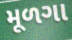
મૂળગા